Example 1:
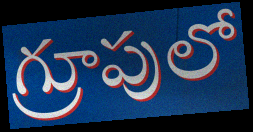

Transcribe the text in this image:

గ్రూపులో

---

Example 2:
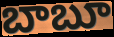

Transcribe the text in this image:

బాబూ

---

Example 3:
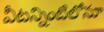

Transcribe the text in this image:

వీటన్నింటిలోనూ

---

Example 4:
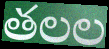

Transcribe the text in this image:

తలల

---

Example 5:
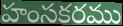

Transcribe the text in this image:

హంసకరము